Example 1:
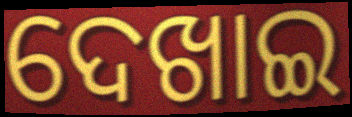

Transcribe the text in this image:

ଦେଖାଇ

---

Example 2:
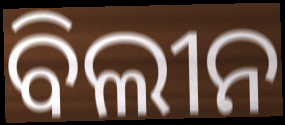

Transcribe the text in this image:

ବିଲୀନ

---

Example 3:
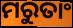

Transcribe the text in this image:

ମରୁତାଂ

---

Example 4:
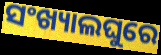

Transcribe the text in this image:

ସଂଖ୍ୟାଲଘୁରେ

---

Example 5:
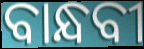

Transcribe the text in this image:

ବାନ୍ଧବୀ